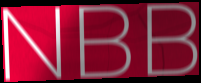
NBB